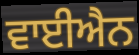
ਵਾਈਐਨ